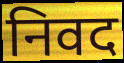
निवद